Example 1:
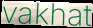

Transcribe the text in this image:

vakhat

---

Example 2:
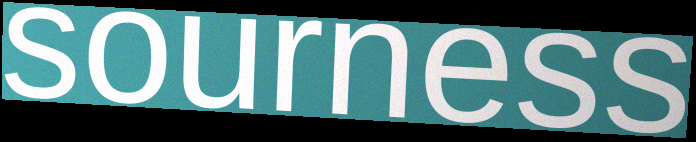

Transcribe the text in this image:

sourness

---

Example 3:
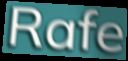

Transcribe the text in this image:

Rafe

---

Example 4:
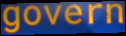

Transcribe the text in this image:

govern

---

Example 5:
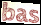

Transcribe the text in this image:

bas